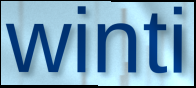
winti